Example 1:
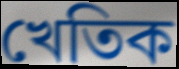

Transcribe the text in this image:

খেতিক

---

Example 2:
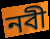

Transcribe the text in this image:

নবী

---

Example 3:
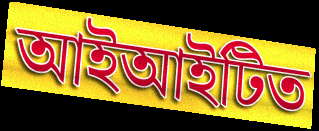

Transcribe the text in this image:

আইআইটিত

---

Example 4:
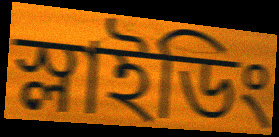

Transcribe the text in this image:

স্লাইডিং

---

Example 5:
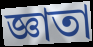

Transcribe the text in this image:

জ্ঞাতা